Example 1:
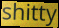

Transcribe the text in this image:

shitty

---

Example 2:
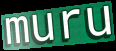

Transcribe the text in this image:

muru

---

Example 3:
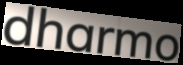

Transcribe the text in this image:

dharmo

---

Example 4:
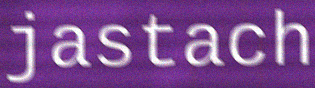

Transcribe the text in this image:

jastach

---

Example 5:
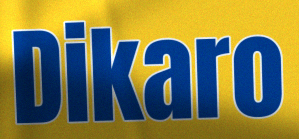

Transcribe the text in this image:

Dikaro